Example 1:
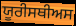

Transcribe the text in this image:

ਯੂਰੀਸਥੀਅਸ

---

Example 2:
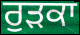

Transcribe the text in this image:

ਰੁੜਕਾ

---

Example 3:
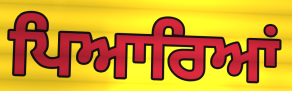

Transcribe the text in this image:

ਪਿਆਰਿਆਂ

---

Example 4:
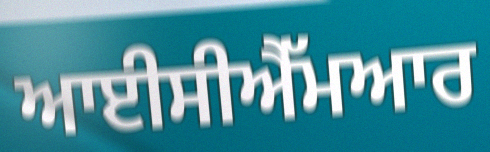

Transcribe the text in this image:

ਆਈਸੀਐੱਮਆਰ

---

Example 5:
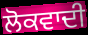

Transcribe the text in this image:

ਲੋਕਵਾਦੀ